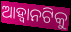
ଆହ୍ଵାନଟିକୁ